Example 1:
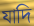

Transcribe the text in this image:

যাদি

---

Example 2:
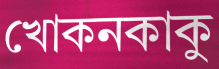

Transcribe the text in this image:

খোকনকাকু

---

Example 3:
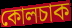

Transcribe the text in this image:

কোলচাক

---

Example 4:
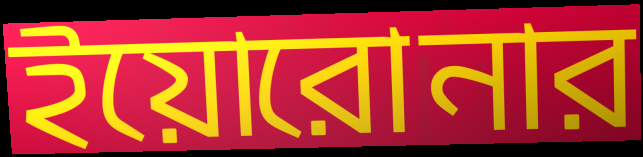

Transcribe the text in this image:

ইয়োরোনার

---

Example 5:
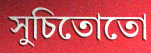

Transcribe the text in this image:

সুচিতোতো